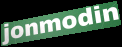
jonmodin